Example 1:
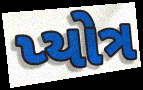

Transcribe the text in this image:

પ્યોત્ર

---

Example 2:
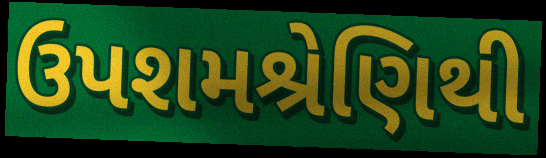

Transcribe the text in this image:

ઉપશમશ્રેણિથી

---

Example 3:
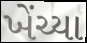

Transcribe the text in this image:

ખેંચ્યા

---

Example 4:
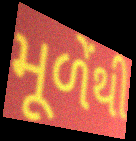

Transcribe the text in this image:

મૂળેંથી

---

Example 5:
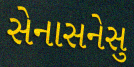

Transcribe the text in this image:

સેનાસનેસુ